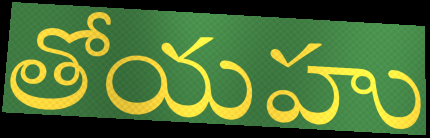
తోయహు